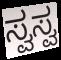
ಸ್ವಸ್ವ